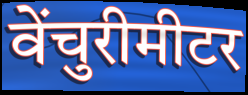
वेंचुरीमीटर